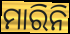
ମାରିନି